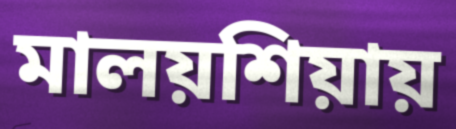
মালয়শিয়ায়